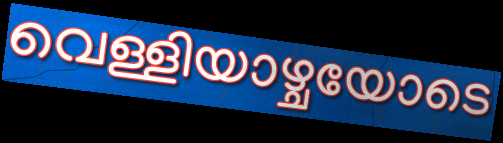
വെള്ളിയാഴ്ചയോടെ